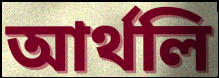
আর্থলি